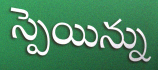
స్పెయిన్ను